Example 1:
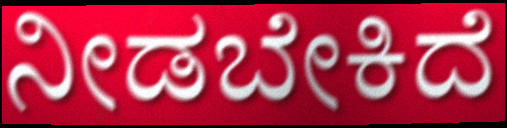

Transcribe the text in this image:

ನೀಡಬೇಕಿದೆ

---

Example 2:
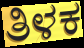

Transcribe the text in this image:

ತಿಳಕ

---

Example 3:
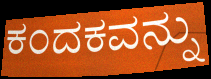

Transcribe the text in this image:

ಕಂದಕವನ್ನು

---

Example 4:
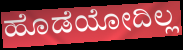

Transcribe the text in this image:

ಹೊಡೆಯೋದಿಲ್ಲ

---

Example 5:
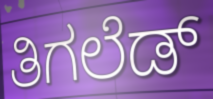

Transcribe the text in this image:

ತಿಗಲೆಡ್